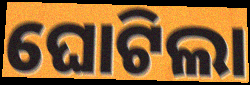
ଘୋଟିଲା